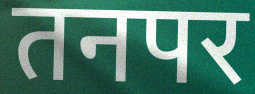
तनपर